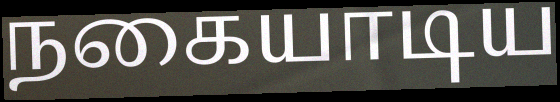
நகையாடிய